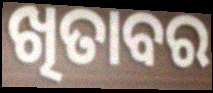
ଖିତାବର